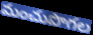
మంచుపొగల